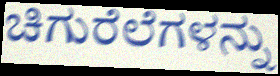
ಚಿಗುರೆಲೆಗಳನ್ನು